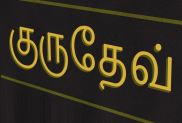
குருதேவ்